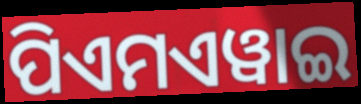
ପିଏମଏୱାଇ